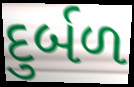
દુર્બળ